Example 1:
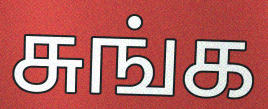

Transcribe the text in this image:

சுங்க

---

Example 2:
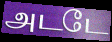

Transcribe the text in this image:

அடடே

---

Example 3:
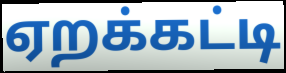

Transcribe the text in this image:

ஏறக்கட்டி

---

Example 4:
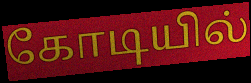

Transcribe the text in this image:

கோடியில்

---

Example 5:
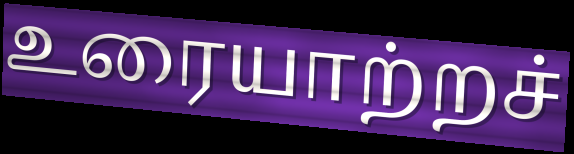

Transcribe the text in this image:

உரையாற்றச்